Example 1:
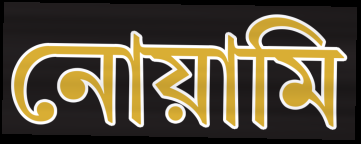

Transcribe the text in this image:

নোয়ামি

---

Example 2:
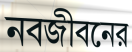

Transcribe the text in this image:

নবজীবনের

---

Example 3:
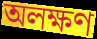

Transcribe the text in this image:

অলক্ষণ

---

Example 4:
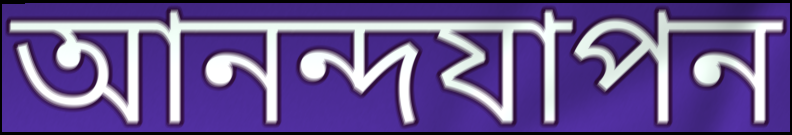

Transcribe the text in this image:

আনন্দযাপন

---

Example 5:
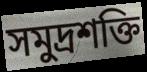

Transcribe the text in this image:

সমুদ্রশক্তি